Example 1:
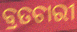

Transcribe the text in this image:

ବ୍ରତଚାରୀ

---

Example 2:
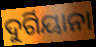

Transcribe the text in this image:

ଦୁର୍ଗିୟାନା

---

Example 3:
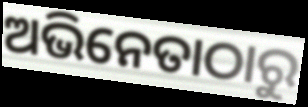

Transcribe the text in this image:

ଅଭିନେତାଠାରୁ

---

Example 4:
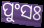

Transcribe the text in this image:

ପୁଂସଃ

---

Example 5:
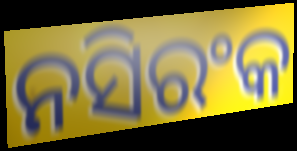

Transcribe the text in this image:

ନସିରଂକ